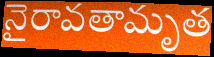
నైరావతామృత